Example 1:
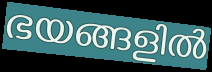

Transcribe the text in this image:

ഭയങ്ങളിൽ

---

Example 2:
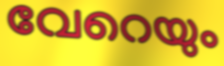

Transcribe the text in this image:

വേറെയും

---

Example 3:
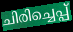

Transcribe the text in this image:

ചിരിച്ചെപ്പ്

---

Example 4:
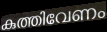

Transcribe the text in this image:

കുത്തിവേണം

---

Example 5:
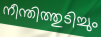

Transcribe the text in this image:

നീന്തിത്തുടിച്ചും